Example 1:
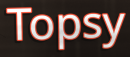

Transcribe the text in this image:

Topsy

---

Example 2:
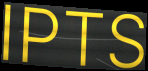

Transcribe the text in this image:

IPTS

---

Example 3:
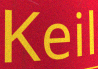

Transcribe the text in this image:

Keil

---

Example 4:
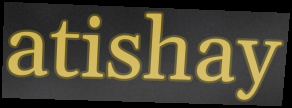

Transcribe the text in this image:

atishay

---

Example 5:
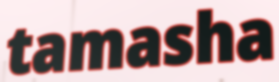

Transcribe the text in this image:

tamasha